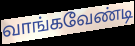
வாங்கவேண்டி